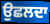
ਉਛਲਦਾ